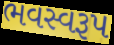
ભવસ્વરૂપ